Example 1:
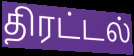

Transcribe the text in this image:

திரட்டல்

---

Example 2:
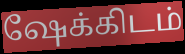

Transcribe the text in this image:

ஷேக்கிடம்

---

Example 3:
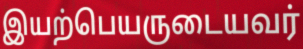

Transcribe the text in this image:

இயற்பெயருடையவர்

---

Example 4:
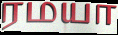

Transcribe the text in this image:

ரமயா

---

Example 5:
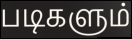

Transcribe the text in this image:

படிகளும்